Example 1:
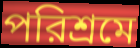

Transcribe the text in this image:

পরিশ্রমে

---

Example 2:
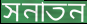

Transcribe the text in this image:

সনাতন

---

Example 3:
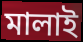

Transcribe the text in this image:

মালাই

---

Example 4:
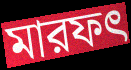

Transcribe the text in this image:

মারফৎ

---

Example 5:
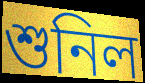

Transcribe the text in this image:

শুনিল